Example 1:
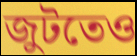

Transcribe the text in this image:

জুটতেও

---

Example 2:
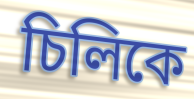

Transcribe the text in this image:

চিলিকে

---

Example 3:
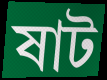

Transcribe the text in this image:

ষাট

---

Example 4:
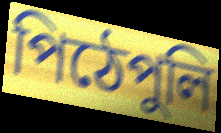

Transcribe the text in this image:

পিঠেপুলি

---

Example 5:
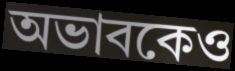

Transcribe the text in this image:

অভাবকেও